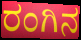
ರಂಗಿನ